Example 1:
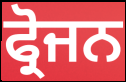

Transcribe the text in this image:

ਫ੍ਰੋਜਨ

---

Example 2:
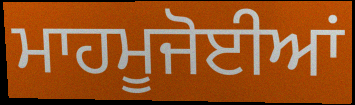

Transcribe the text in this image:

ਮਾਹਮੂਜੋਈਆਂ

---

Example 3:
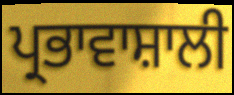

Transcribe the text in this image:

ਪ੍ਰਭਾਵਾਸ਼ਾਲੀ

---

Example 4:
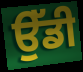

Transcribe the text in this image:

ਉੱਡੀ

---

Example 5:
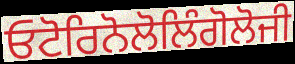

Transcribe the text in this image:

ਓਟੋਰਿਨੋਲੋਲਿੰਗੋਲੋਜੀ